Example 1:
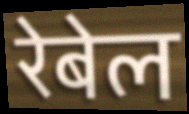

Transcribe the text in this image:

रेबेल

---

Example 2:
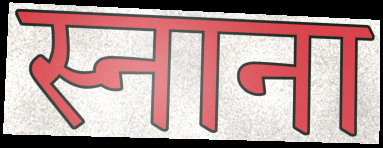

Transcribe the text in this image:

स्नाना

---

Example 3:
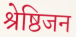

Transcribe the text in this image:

श्रेष्ठिजन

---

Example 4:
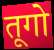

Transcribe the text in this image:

तूगो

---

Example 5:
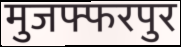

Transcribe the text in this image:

मुजफ्फरपुर